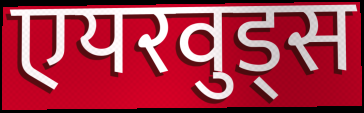
एयरवुड्स